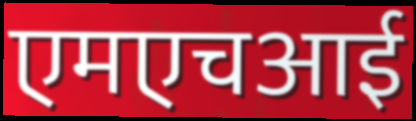
एमएचआई